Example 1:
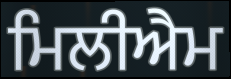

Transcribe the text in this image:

ਮਿਲੀਐਮ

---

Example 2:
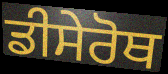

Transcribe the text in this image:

ਡੀਸੇਰੋਥ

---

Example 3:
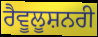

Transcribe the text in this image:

ਰੈਵੂਲੂਸ਼ਨਰੀ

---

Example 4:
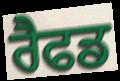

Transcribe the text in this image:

ਰੈਫਡ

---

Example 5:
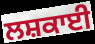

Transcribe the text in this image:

ਲਸ਼ਕਾਈ